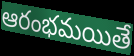
ఆరంభమయితే